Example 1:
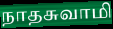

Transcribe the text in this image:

நாதசுவாமி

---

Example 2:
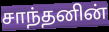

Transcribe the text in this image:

சாந்தனின்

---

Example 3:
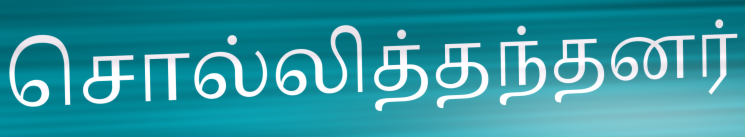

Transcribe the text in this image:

சொல்லித்தந்தனர்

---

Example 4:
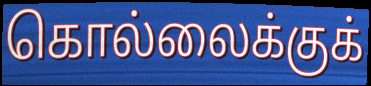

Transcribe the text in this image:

கொல்லைக்குக்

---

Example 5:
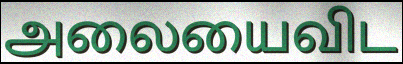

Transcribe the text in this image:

அலையைவிட